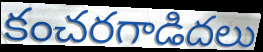
కంచరగాడిదలు